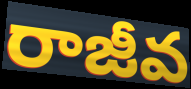
రాజీవ